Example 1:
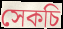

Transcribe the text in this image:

সেকচি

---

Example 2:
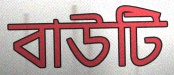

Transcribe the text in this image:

বাউটি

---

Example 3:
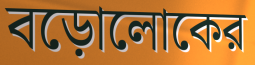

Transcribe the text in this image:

বড়োলোকের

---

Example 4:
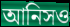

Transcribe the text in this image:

আনিসও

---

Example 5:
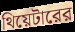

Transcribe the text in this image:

থিয়েটারের